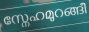
സ്നേഹമുറങ്ങീ